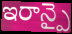
ఇరాన్పై